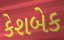
કેશબેક